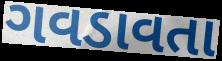
ગવડાવતા